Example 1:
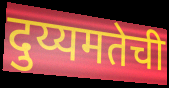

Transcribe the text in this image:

दुय्यमतेची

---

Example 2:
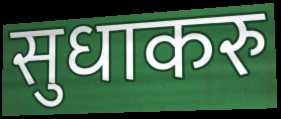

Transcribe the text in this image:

सुधाकरु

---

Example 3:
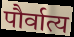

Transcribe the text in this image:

पौर्वात्य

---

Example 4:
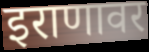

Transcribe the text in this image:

इराणावर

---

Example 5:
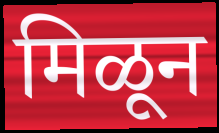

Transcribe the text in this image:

मिळून